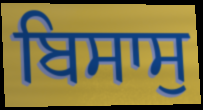
ਬਿਸਾਸੁ